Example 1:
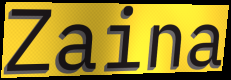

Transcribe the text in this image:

Zaina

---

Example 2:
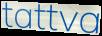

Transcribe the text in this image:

tattva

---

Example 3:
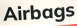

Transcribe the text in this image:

Airbags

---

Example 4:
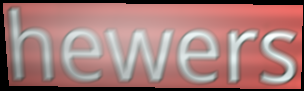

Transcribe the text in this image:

hewers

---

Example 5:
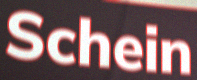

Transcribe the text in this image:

Schein